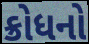
ક્રોધનો